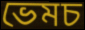
ভেমচ